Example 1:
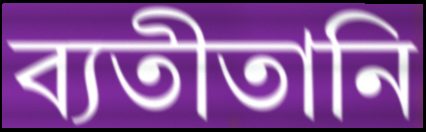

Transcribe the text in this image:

ব্যতীতানি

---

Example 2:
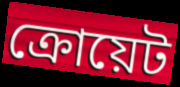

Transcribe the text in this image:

ক্রোয়েট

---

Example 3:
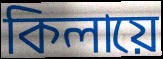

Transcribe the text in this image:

কিলায়ে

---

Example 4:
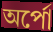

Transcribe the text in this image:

অর্পো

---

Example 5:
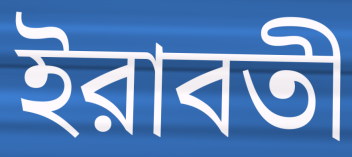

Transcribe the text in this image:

ইরাবতী